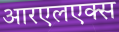
आरएलएक्स